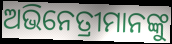
ଅଭିନେତ୍ରୀମାନଙ୍କୁ